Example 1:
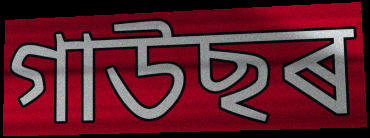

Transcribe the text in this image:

গাউছৰ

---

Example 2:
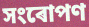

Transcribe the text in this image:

সংৰোপণ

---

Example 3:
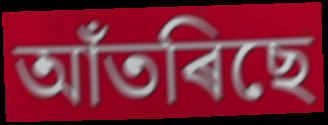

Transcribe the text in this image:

আঁতৰিছে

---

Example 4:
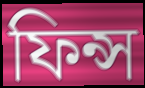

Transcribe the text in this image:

ফিন্স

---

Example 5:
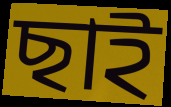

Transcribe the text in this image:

ছাই